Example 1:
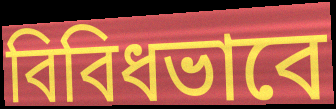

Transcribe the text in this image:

বিবিধভাবে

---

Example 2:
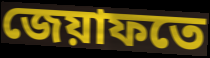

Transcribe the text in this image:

জেয়াফতে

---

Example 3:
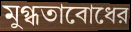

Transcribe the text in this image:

মুগ্ধতাবোধের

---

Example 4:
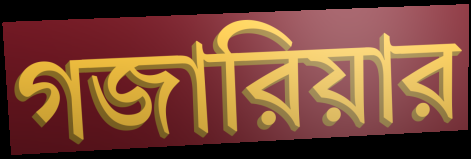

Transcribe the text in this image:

গজারিয়ার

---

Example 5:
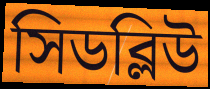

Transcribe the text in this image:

সিডব্লিউ